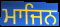
ਮਾਜਿਨ